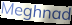
Meghnad